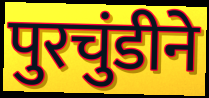
पुरचुंडीने